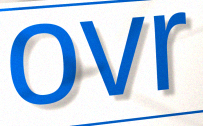
ovr